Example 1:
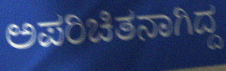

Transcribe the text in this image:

ಅಪರಿಚಿತನಾಗಿದ್ದ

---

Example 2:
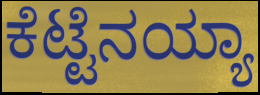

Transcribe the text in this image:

ಕೆಟ್ಟೆನಯ್ಯಾ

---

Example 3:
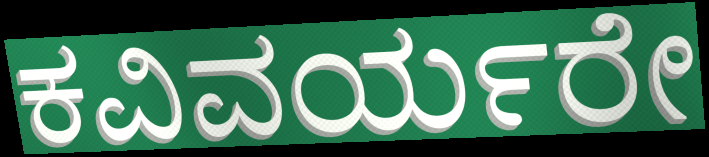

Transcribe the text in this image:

ಕವಿವರ್ಯರೇ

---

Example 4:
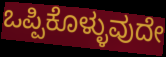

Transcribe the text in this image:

ಒಪ್ಪಿಕೊಳ್ಳುವುದೇ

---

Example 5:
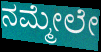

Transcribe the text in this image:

ನಮ್ಮೇಲೇ